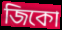
জিকো